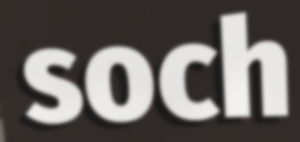
soch